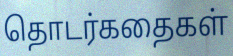
தொடர்கதைகள்